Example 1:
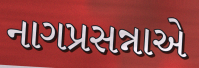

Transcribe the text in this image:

નાગપ્રસન્નાએ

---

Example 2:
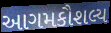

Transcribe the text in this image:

આગમકૌશલ્ય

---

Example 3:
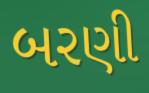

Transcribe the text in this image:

બરણી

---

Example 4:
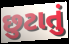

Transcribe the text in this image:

છુટાતું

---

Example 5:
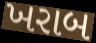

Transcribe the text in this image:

ખરાબ